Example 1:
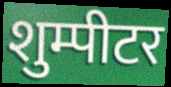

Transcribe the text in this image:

शुम्पीटर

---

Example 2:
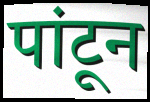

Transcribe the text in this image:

पांटून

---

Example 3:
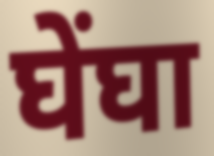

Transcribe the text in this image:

घेंघा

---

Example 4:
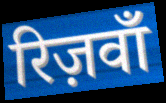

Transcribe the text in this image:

रिज़वाँ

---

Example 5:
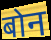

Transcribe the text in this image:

बोन